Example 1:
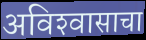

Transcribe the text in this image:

अविश्वासाचा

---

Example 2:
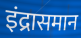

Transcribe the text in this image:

इंद्रासमान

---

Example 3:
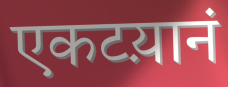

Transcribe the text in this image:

एकटय़ानं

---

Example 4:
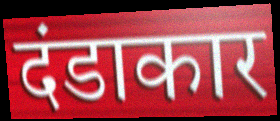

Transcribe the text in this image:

दंडाकार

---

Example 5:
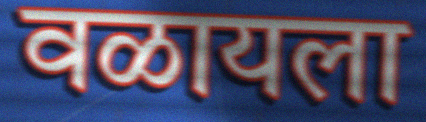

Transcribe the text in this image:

वळायला